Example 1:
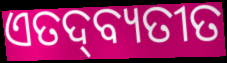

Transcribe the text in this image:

ଏତଦ୍‌ବ୍ୟତୀତ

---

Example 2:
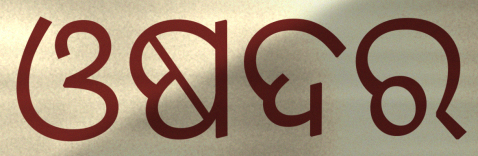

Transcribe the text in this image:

ଓଷଦର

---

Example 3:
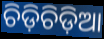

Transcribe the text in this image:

ଚିଡ଼ିଚିଡ଼ିଆ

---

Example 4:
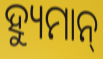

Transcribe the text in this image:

ହ୍ୟୁମାନ୍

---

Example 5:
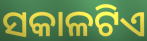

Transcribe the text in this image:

ସକାଳଟିଏ